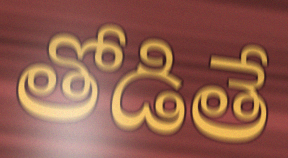
తోడితే